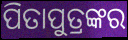
ପିତାପୁତ୍ରଙ୍କର